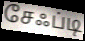
சேஃப்டி